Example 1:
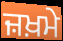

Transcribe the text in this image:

ਜ਼ਖ਼ਮੇ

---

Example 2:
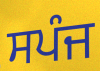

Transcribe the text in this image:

ਸਪੰਜ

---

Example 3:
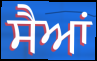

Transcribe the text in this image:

ਸੈਆਂ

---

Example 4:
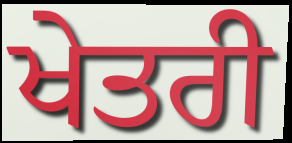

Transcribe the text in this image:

ਖੇਤਰੀ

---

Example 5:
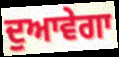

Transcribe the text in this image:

ਦੁਆਵੇਗਾ